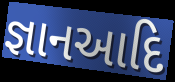
જ્ઞાનઆદિ